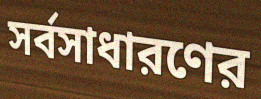
সর্বসাধারণের